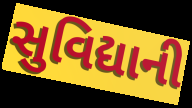
સુવિદ્યાની